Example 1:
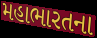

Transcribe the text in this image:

મહાભારતના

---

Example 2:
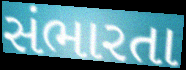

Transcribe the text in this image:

સંભારતા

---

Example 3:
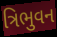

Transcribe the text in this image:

ત્રિભુવન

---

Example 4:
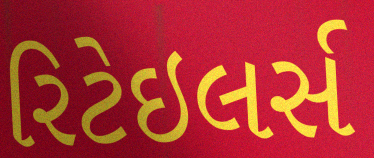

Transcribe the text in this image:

રિટેઇલર્સ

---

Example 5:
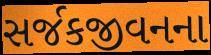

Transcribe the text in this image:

સર્જકજીવનના